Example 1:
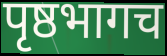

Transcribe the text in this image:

पृष्ठभागच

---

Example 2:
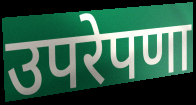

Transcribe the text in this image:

उपरेपणा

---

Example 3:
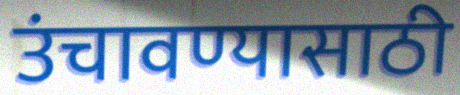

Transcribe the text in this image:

उंचावण्यासाठी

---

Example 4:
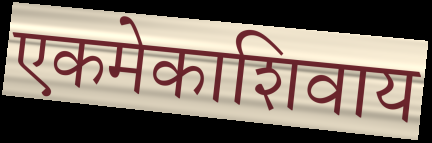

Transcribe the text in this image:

एकमेकाशिवाय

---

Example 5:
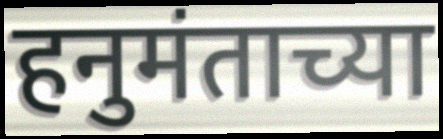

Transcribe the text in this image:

हनुमंताच्या